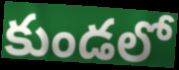
కుండలో